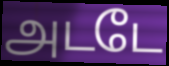
அடடே